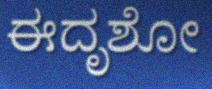
ಈದೃಶೋ